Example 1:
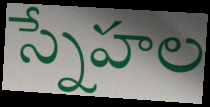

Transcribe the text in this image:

స్నేహల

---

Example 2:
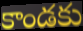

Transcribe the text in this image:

కాండకు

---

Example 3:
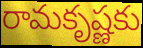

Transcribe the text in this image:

రామకృష్ణకు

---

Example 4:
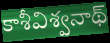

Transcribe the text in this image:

కాశీవిశ్వనాథ్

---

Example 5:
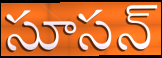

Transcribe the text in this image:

సూసన్